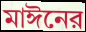
মাঈনের